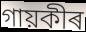
গায়কীৰ